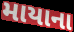
માયાના